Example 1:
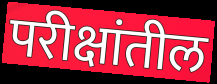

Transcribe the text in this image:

परीक्षांतील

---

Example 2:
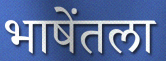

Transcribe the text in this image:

भाषेंतला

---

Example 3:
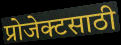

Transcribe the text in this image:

प्रोजेक्टसाठी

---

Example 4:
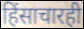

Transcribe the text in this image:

हिंसाचारही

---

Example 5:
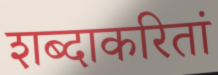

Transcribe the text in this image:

शब्दाकरितां